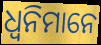
ଧ୍ୱନିମାନେ